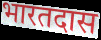
भारतदास